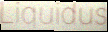
Liquidus